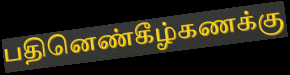
பதினெண்கீழ்கணக்கு